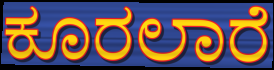
ಕೂರಲಾರೆ